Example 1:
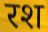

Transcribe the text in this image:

रश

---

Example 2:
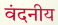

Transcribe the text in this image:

वंदनीय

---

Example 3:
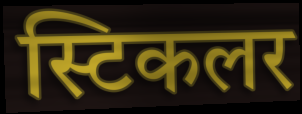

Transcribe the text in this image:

स्टिकलर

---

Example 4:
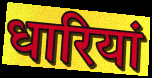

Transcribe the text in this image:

धारियां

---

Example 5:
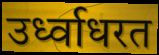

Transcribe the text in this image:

उर्ध्वाधरत